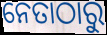
ନେତାଠାରୁ